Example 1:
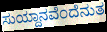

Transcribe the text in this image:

ಸುಯ್ದಾನವೆಂದೆನುತ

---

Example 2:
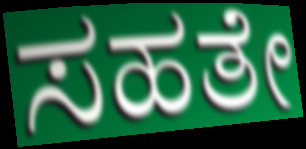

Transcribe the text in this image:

ಸಹತೇ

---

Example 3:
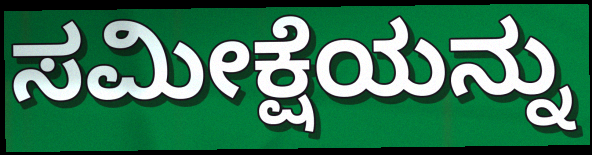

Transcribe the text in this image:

ಸಮೀಕ್ಷೆಯನ್ನು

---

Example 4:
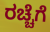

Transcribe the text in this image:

ರಚ್ಚೆಗೆ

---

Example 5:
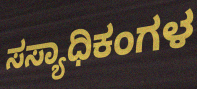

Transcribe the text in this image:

ಸಸ್ಯಾಧಿಕಂಗಳ